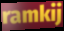
ramkij